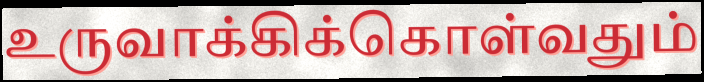
உருவாக்கிக்கொள்வதும்